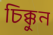
চিক্কুন